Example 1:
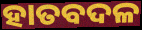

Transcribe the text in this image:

ହାତବଦଳ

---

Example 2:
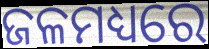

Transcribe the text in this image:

ଜଳମଧ୍ଯରେ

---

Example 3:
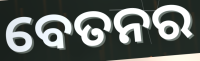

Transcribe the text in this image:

ବେତନର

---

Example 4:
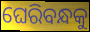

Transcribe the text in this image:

ଘେରିବନ୍ଧକୁ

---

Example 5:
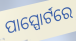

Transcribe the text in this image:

ପାସ୍ପୋର୍ଟରେ